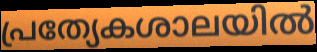
പ്രത്യേകശാലയിൽ